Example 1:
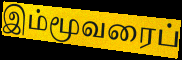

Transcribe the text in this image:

இம்மூவரைப்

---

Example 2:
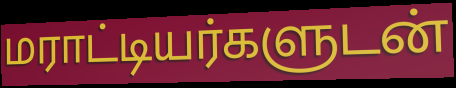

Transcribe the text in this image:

மராட்டியர்களுடன்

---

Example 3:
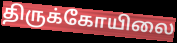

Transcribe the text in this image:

திருக்கோயிலை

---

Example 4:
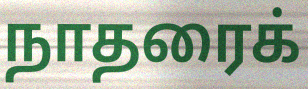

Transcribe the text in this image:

நாதரைக்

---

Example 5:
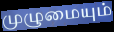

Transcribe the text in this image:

முழுமையும்